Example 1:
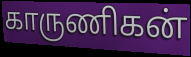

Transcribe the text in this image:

காருணிகன்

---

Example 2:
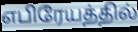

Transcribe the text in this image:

எபிரேயத்தில்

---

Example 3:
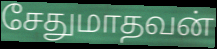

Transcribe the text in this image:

சேதுமாதவன்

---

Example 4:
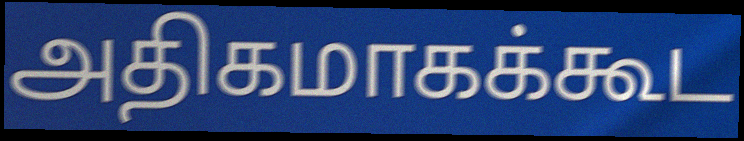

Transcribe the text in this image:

அதிகமாகக்கூட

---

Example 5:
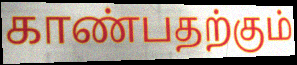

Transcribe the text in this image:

காண்பதற்கும்